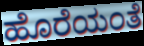
ಹೊರೆಯಂತೆ